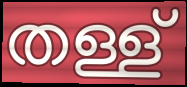
തള്ള്